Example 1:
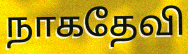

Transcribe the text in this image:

நாகதேவி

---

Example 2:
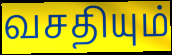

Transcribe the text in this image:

வசதியும்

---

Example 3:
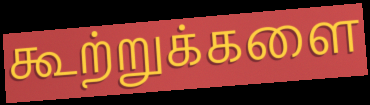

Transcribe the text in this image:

கூற்றுக்களை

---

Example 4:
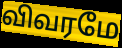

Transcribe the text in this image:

விவரமே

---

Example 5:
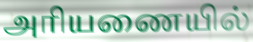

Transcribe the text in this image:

அரியணையில்